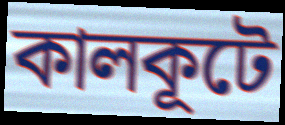
কালকূটে